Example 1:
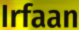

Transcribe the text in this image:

Irfaan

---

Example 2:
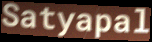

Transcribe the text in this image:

Satyapal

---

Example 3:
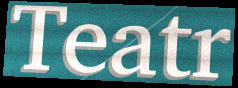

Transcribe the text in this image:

Teatr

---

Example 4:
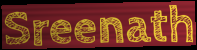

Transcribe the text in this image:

Sreenath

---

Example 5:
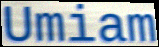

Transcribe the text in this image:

Umiam